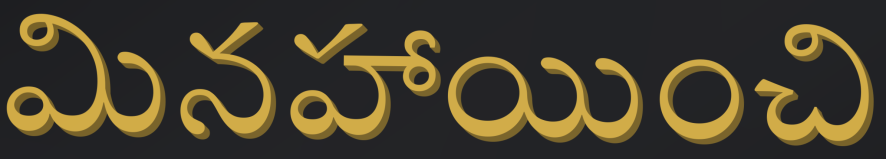
మినహాయించి